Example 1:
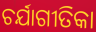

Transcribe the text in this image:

ଚର୍ଯାଗୀତିକା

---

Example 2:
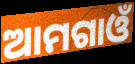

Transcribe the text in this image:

ଆମଗାଓଁ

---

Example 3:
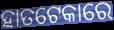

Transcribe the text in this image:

ହାତଟେକାରେ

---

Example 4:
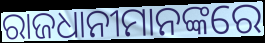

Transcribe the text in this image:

ରାଜଧାନୀମାନଙ୍କରେ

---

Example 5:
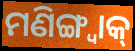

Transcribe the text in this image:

ମଣିଙ୍ଗ୍ୱାକ୍